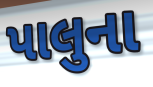
પાલુના